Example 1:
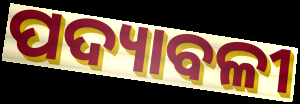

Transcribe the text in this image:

ପଦ୍ୟାବଳୀ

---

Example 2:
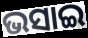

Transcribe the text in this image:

ଭସାଇ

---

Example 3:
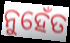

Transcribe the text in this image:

ନୁହେଁତ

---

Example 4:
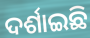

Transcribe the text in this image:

ଦର୍ଶାଇଛି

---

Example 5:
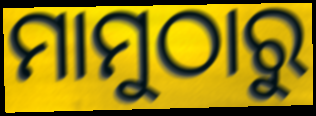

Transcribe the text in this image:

ମାମୁଠାରୁ